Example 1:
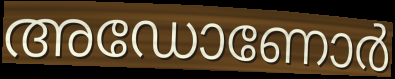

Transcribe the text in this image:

അഡോണോർ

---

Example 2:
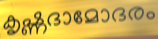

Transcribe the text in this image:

കൃഷ്ണദാമോദരം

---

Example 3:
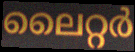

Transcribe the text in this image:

ലൈറ്റർ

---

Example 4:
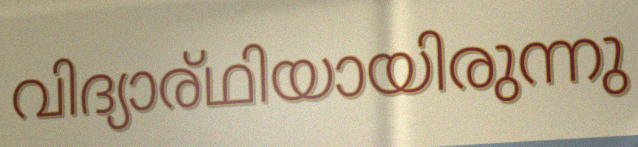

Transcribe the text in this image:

വിദ്യാര്ഥിയായിരുന്നു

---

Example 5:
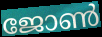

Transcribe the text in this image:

ജോൺ